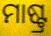
ମାଷ୍ଟ୍ର